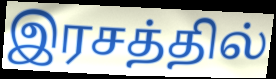
இரசத்தில்